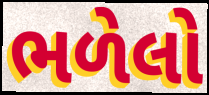
ભળેલો